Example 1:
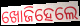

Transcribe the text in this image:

ଖୋଜିହେଲେ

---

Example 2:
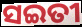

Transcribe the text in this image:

ସଇତୀ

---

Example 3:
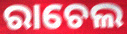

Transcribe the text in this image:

ରାଚେଲ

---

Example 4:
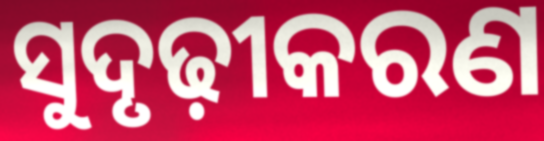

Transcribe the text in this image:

ସୁଦୃଢ଼ୀକରଣ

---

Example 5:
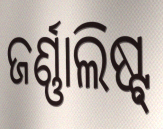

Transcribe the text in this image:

ଜର୍ଣ୍ଣାଲିଷ୍ଟ୍